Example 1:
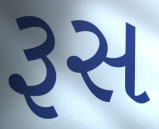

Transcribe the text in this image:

રૂસ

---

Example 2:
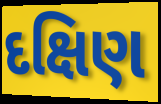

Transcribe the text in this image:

દક્ષિણ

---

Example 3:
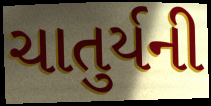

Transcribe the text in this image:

ચાતુર્યની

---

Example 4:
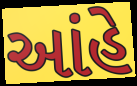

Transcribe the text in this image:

આંહે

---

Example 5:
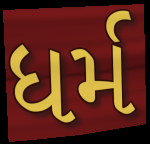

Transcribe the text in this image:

ધર્મ